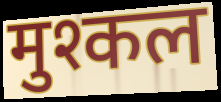
मुश्कल